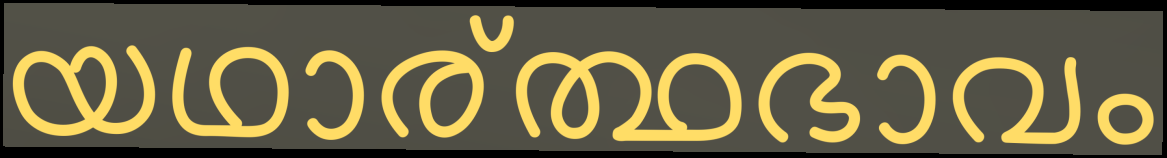
യഥാര്ത്ഥഭാവം